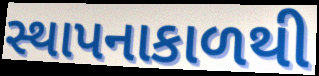
સ્થાપનાકાળથી